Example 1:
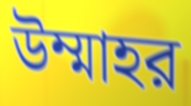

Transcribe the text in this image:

উম্মাহর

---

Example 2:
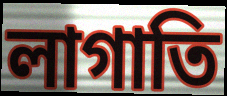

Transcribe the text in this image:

লাগাতি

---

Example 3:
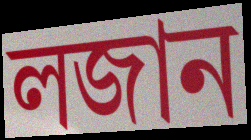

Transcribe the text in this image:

লজান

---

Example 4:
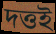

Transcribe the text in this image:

দত্তই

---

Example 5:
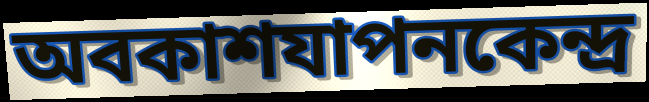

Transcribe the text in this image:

অবকাশযাপনকেন্দ্র